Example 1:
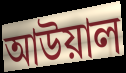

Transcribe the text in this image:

আউয়াল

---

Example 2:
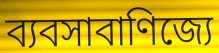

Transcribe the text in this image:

ব্যবসাবাণিজ্যে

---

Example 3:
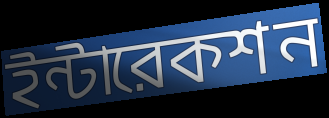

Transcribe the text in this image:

ইন্টারেকশন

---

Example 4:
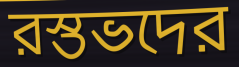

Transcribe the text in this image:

রস্তভদের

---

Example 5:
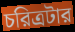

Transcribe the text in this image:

চরিত্রটার